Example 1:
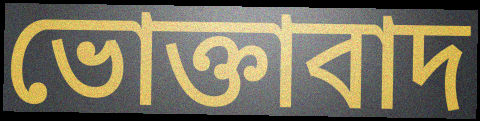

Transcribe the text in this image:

ভোক্তাবাদ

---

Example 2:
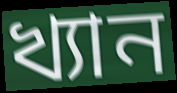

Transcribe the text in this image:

খ্যান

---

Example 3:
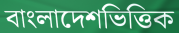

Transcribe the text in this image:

বাংলাদেশভিত্তিক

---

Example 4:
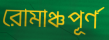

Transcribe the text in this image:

রোমাঞ্চপূর্ণ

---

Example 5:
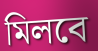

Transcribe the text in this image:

মিলবে